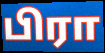
பிரா